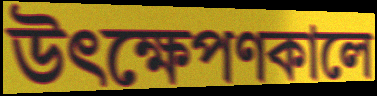
উৎক্ষেপণকালে